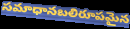
సమాధానబలిరూపమైన